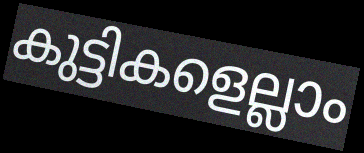
കുട്ടികളെല്ലാം